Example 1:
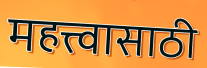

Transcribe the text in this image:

महत्त्वासाठी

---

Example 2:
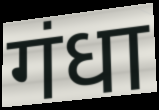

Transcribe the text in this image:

गंधा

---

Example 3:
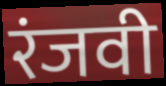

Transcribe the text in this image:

रंजवी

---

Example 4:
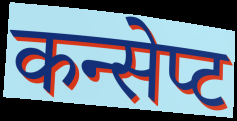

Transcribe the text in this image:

कन्सेप्ट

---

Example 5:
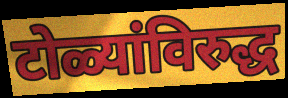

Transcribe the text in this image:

टोळ्यांविरुद्ध